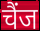
चैंज